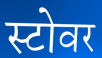
स्टोवर